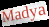
Madya